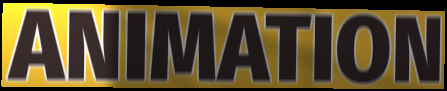
ANIMATION